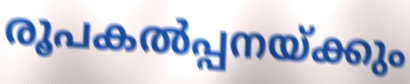
രൂപകൽപ്പനയ്ക്കും